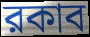
রকাব